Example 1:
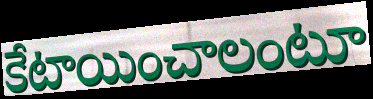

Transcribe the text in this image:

కేటాయించాలంటూ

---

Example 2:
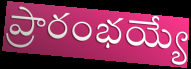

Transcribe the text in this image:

ప్రారంభయ్యే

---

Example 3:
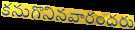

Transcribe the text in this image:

కనుగొనినవారందరు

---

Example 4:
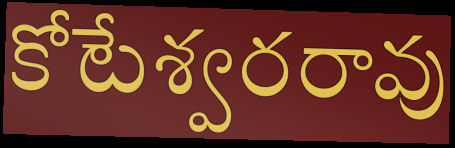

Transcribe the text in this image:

కోటేశ్వరరావు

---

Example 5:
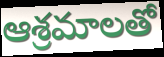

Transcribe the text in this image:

ఆశ్రమాలతో